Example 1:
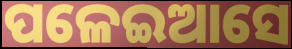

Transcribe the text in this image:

ପଳେଇଆସେ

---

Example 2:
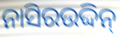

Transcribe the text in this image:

ନାସିରଉଦ୍ଦିନ୍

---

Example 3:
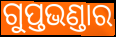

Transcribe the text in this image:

ଗୁପ୍ତଭଣ୍ଡାର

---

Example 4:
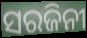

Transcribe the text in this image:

ସରଜିନୀ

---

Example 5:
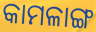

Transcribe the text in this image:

କାମଳାଙ୍ଗ